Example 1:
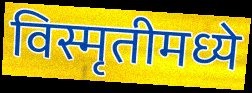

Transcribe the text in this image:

विस्मृतीमध्ये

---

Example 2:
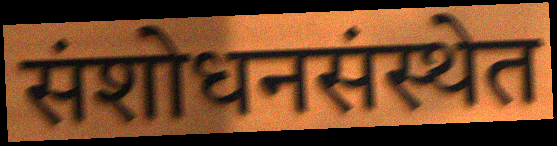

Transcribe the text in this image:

संशोधनसंस्थेत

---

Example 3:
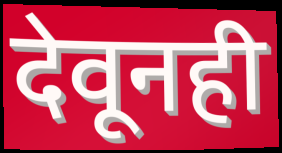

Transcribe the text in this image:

देवूनही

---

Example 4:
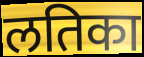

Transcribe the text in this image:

लतिका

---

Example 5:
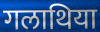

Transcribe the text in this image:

गलाथिया